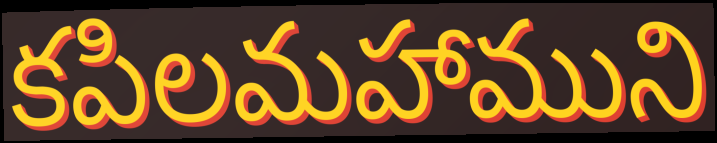
కపిలమహాముని